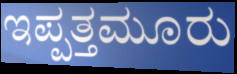
ಇಪ್ಪತ್ತಮೂರು